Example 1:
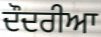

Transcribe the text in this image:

ਦੌਦਰੀਆ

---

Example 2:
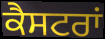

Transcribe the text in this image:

ਕੈਸਟਰਾਂ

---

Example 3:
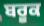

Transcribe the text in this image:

ਬਰੂਕ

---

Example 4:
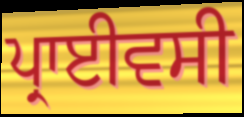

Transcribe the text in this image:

ਪ੍ਰਾਈਵਸੀ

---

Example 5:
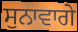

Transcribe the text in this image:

ਸੁਨਾਵਾਗੇ